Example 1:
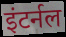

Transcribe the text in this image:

इंटर्नल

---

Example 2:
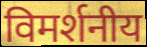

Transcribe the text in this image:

विमर्शनीय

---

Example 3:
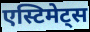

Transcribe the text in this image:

एस्टिमेट्स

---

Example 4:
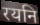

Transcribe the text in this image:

रयनि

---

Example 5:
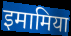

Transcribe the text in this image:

इमामिया